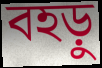
বহড়ু